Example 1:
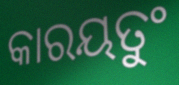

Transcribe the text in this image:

କାରୟତୁଂ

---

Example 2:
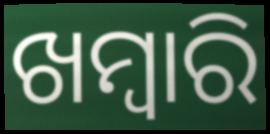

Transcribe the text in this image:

ଖମ୍ୱାରି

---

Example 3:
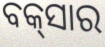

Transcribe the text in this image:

ବକ୍‌ସାର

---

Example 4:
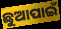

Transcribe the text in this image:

ଛୁଆପାଇଁ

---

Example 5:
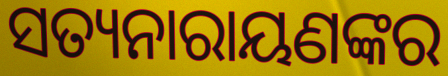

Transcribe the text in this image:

ସତ୍ୟନାରାୟଣଙ୍କର